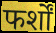
फर्शों